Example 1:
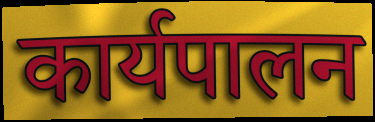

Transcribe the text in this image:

कार्यपालन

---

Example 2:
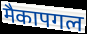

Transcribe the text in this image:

मैकापगल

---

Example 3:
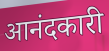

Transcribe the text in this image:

आनंदकारी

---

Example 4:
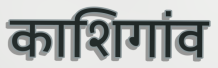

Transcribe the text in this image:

काशिगांव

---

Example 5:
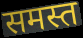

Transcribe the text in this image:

समस्त